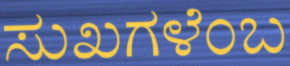
ಸುಖಗಳೆಂಬ